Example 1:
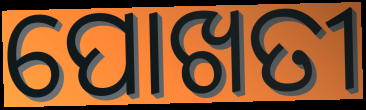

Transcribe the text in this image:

ପୋଖତୀ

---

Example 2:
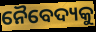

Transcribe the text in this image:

ନୈବେଦ୍ୟକୁ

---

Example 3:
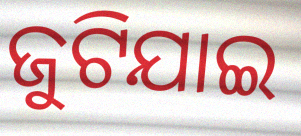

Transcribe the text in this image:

ଜୁଟିଯାଇ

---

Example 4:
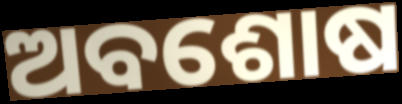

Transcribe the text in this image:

ଅବଶୋଷ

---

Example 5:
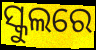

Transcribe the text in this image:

ସ୍କୁଲରେ